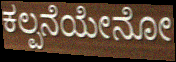
ಕಲ್ಪನೆಯೇನೋ